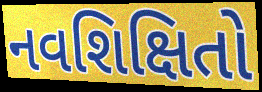
નવશિક્ષિતો